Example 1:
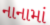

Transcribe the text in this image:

નાનામાં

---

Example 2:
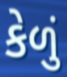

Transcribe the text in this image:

કેળું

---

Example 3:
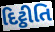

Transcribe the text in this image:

દિટ્ઠીતિ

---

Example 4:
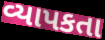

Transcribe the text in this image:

વ્યાપકતા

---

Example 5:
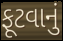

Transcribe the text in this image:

ફૂટવાનું